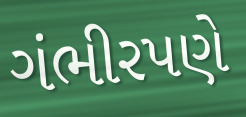
ગંભીરપણે